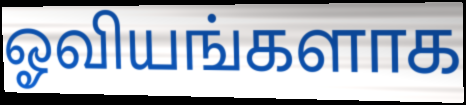
ஓவியங்களாக